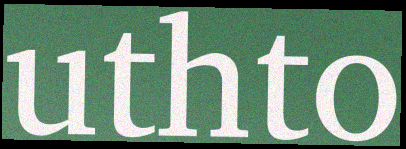
uthto